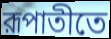
রূপাতীতে